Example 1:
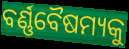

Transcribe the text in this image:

ବର୍ଣ୍ଣବୈଷମ୍ୟକୁ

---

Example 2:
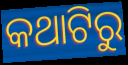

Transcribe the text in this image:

କଥାଟିରୁ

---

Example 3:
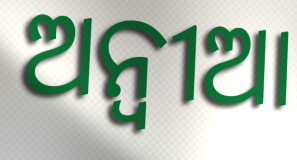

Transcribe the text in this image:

ଅନ୍ବୀଆ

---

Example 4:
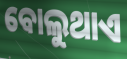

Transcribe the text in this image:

ବୋଲୁଥାଏ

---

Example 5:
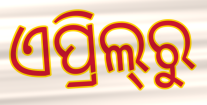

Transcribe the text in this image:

ଏପ୍ରିଲ୍‌ରୁ